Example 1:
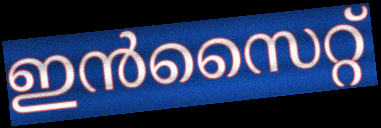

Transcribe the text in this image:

ഇൻസൈറ്റ്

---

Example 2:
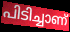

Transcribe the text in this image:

പിടിച്ചാണ്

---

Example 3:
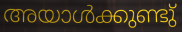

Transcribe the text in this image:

അയാൾക്കുണ്ടു്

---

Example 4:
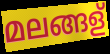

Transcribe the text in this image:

മലങ്ങള്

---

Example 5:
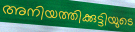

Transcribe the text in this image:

അനിയത്തിക്കുട്ടിയുടെ